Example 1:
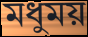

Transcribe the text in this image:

মধুময়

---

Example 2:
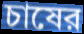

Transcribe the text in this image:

চাষের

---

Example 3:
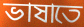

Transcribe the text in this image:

ভাষাতে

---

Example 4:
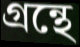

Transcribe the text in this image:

গ্রন্থে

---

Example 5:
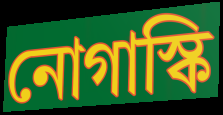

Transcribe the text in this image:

নোগাস্কি